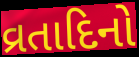
વ્રતાદિનો